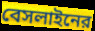
বেসলাইনের